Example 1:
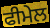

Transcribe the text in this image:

ਫੀਮੇਲ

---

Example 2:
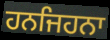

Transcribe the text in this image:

ਹਨਜਿਹਨਾ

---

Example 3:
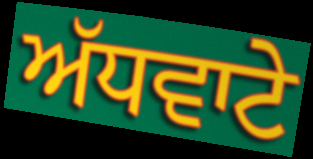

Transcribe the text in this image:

ਅੱਧਵਾਟੇ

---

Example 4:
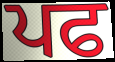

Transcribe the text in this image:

ਪਫ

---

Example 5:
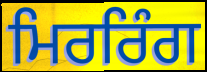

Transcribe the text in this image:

ਮਿਰਰਿੰਗ